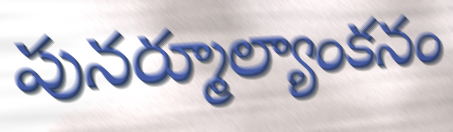
పునర్మూల్యాంకనం